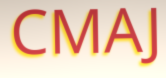
CMAJ